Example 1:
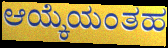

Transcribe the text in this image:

ಆಯ್ಕೆಯಂತಹ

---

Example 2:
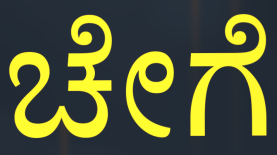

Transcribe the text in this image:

ಚೇಗೆ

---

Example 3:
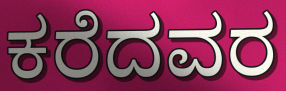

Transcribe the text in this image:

ಕರೆದವರ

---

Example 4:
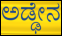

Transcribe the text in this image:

ಅಡ್ಢೇನ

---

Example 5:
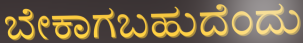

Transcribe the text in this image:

ಬೇಕಾಗಬಹುದೆಂದು